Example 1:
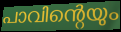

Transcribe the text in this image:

പാവിന്റെയും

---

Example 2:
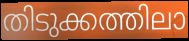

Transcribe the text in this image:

തിടുക്കത്തിലാ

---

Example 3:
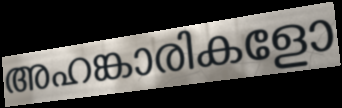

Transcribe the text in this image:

അഹങ്കാരികളോ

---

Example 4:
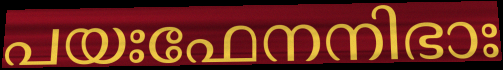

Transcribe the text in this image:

പയഃഫേനനിഭാഃ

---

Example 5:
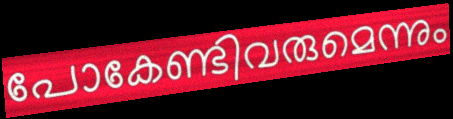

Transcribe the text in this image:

പോകേണ്ടിവരുമെന്നും